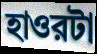
হাওরটা